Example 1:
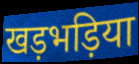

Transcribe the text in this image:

खड़भड़िया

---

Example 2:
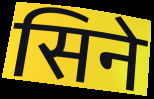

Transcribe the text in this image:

सिने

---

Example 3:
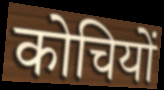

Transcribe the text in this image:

कोचियों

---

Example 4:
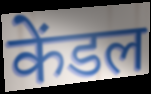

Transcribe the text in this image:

केंडल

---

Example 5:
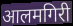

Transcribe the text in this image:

आलमगिरी